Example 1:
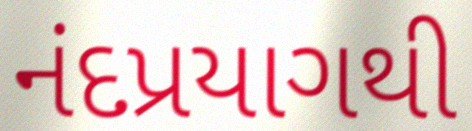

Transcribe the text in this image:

નંદપ્રયાગથી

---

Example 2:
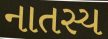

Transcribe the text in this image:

નાતસ્ય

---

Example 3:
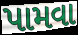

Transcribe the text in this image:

પામવા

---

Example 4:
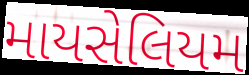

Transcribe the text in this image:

માયસેલિયમ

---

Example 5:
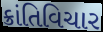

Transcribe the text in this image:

ક્રાંતિવિચાર